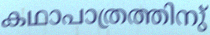
കഥാപാത്രത്തിനു്